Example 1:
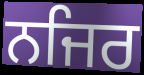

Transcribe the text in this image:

ਨਜਿਰ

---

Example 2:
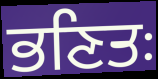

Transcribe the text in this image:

ਭਣਿਤਃ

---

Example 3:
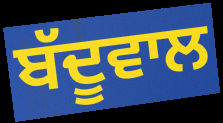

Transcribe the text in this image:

ਬੱਦੂਵਾਲ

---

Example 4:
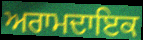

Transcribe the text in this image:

ਅਰਾਮਦਾਇਕ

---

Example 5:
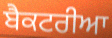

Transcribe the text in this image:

ਬੈਕਟਰੀਆ